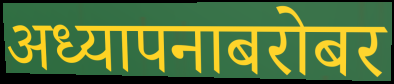
अध्यापनाबरोबर